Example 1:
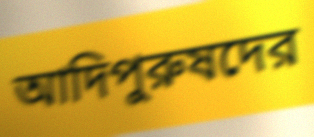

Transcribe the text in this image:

আদিপুরুষদের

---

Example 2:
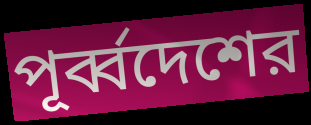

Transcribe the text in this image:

পূর্ব্বদেশের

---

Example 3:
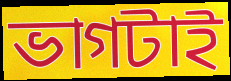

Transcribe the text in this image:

ভাগটাই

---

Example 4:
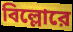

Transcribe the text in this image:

বিল্লোরে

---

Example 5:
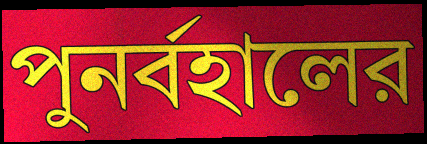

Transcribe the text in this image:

পুনর্বহালের